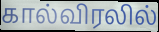
கால்விரலில்